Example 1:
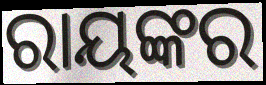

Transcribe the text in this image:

ରାୟଙ୍କର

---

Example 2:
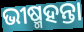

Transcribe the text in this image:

ଭୀଷ୍ମହନ୍ତା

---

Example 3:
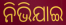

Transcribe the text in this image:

ନିଭିଯାଇ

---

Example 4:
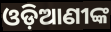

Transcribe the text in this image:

ଓଡ଼ିଆଣୀଙ୍କ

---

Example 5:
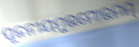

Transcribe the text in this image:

ପୂଜନୀୟମୁତ୍ତମୋତ୍ତମମ୍